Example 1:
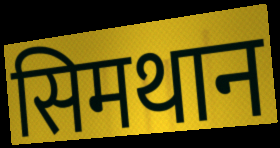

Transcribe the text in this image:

सिमथान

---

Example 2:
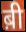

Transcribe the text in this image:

ब़ी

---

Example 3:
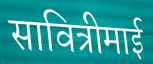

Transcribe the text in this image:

सावित्रीमाई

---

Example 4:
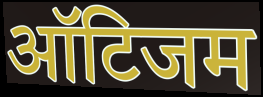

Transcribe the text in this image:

ऑटिजम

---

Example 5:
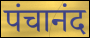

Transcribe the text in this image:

पंचानंद